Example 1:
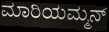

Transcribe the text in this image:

ಮಾರಿಯಮ್ಮನ್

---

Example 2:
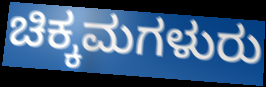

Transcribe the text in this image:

ಚಿಕ್ಕಮಗಳುರು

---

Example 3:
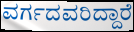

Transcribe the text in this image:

ವರ್ಗದವರಿದ್ದಾರೆ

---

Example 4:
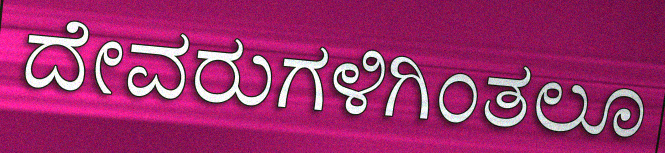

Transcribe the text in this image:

ದೇವರುಗಳಿಗಿಂತಲೂ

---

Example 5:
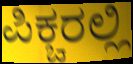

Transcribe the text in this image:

ಪಿಕ್ಚರಲ್ಲಿ